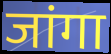
जांगा